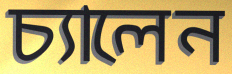
চ্যালেন